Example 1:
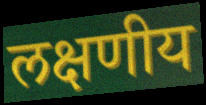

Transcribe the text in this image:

लक्षणीय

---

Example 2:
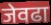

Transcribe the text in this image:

जेवढा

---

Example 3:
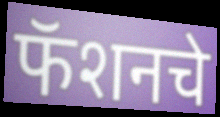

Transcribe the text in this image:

फॅशनचे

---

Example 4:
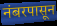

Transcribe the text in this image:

नंबरपासून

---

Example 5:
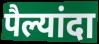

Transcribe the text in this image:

पैल्यांदा